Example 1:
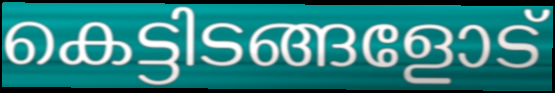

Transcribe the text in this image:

കെട്ടിടങ്ങളോട്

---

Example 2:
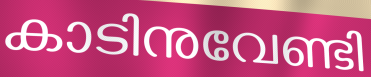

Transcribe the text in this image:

കാടിനുവേണ്ടി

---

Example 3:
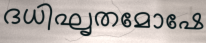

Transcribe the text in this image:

ദധിഘൃതമോഷേ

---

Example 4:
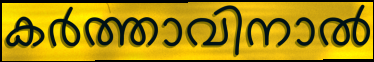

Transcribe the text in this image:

കർത്താവിനാൽ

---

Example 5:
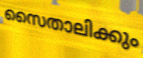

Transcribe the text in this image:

സൈതാലിക്കും